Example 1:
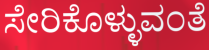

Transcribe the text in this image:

ಸೇರಿಕೊಳ್ಳುವಂತೆ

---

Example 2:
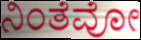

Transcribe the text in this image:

ನಿಂತೆವೋ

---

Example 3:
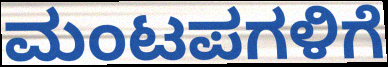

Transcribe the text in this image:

ಮಂಟಪಗಳಿಗೆ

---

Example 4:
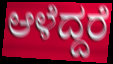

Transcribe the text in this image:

ಆಳೆದ್ದರೆ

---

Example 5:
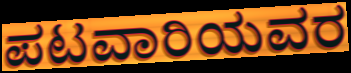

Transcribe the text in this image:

ಪಟವಾರಿಯವರ